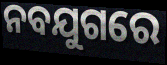
ନବଯୁଗରେ